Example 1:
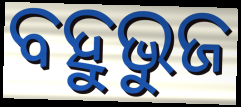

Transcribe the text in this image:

ବହୁଭୁଜ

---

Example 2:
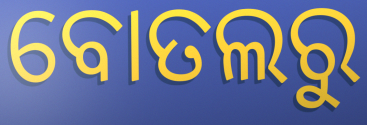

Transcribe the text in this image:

ବୋତଲରୁ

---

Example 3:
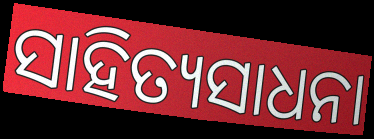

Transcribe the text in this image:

ସାହିତ୍ୟସାଧନା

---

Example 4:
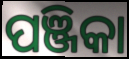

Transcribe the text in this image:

ପଞ୍ଜିକା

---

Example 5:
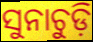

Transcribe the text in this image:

ସୁନାଚୁଡ଼ି